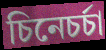
চিনেচৰ্চা